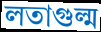
লতাগুল্ম